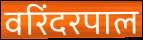
वरिंदरपाल